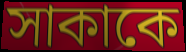
সাকাকে